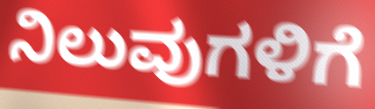
ನಿಲುವುಗಳಿಗೆ